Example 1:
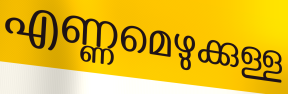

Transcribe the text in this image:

എണ്ണമെഴുക്കുള്ള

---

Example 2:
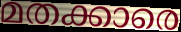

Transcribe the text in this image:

മതക്കാരെ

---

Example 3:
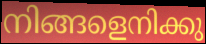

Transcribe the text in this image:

നിങ്ങളെനിക്കു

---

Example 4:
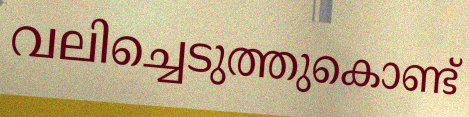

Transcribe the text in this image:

വലിച്ചെടുത്തുകൊണ്ട്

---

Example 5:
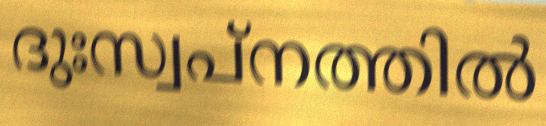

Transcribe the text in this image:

ദുഃസ്വപ്നത്തിൽ